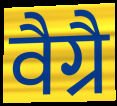
वैग्रै